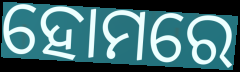
ହୋମରେ